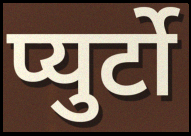
प्युर्टो